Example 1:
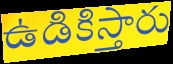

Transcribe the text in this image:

ఉడికిస్తారు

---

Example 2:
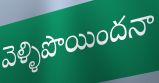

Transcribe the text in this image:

వెళ్ళిపొయిందనా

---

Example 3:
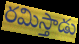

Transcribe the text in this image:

రమిస్తాడు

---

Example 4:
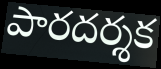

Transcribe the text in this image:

పారదర్శక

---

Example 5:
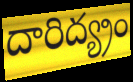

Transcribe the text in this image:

దారిద్య్రం